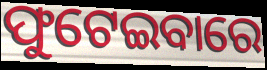
ଫୁଟେଇବାରେ